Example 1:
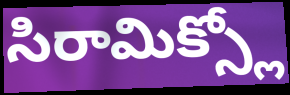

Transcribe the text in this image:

సిరామిక్స్లో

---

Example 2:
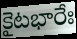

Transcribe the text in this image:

కైటభారేః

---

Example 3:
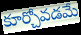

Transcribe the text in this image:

కూర్చోవడమే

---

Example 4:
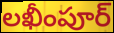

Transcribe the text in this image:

లఖీంపూర్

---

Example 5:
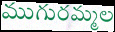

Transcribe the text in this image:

ముగురమ్మల